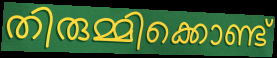
തിരുമ്മിക്കൊണ്ട്